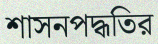
শাসনপদ্ধতির